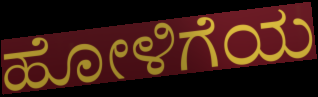
ಹೋಳಿಗೆಯ